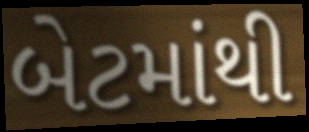
બેટમાંથી